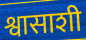
श्वासाशी